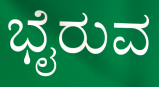
ಭೈರುವ